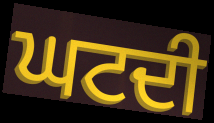
ਘਟਦੀ